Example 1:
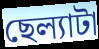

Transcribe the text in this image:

ছেল্যাটা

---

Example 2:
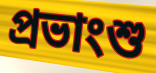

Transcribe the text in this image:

প্রভাংশু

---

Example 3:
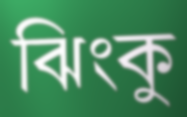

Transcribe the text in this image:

ঝিংকু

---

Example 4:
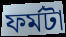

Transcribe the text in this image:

ফর্মটা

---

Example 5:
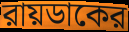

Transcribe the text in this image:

রায়ডাকের